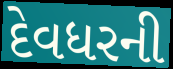
દેવધરની